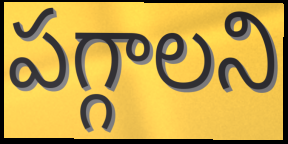
పగ్గాలని